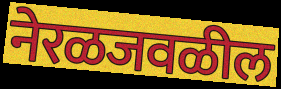
नेरळजवळील